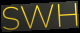
SWH